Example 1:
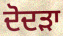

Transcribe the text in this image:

ਦੋਦੜਾ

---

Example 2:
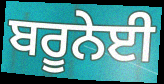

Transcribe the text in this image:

ਬਰੂਨੇਈ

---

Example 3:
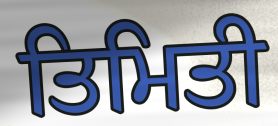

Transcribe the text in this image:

ਤਿਮਿਤੀ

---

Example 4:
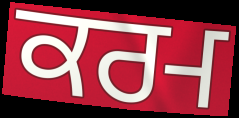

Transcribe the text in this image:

ਕਰ੍ਮ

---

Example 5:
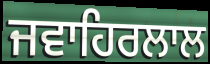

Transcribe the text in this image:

ਜਵਾਹਿਰਲਾਲ